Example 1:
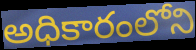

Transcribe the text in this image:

అధికారంలోని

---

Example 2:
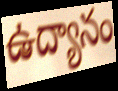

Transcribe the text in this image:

ఉద్యానం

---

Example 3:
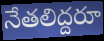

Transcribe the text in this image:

నేతలిద్దరూ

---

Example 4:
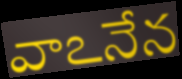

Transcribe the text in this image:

వాఽనేన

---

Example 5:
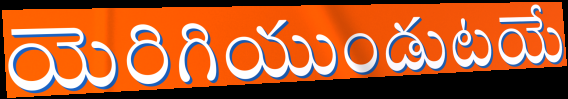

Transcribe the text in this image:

యెరిగియుండుటయే